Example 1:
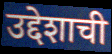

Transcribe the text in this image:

उद्देशाची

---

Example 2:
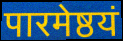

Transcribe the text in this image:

पारमेष्ठयं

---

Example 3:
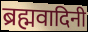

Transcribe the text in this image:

ब्रह्मवादिनी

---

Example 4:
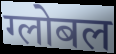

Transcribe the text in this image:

ग्लोबल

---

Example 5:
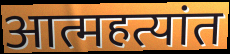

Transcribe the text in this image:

आत्महत्यांत